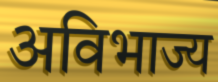
अविभाज्य